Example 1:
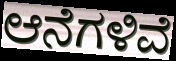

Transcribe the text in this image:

ಆನೆಗಳಿವೆ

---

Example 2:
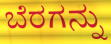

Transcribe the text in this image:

ಬೆರಗನ್ನು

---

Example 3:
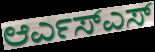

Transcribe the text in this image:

ಆರ್ಎಸ್ಎಸ್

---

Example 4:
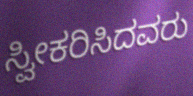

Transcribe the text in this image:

ಸ್ವೀಕರಿಸಿದವರು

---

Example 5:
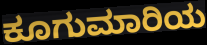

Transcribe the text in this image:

ಕೂಗುಮಾರಿಯ